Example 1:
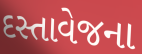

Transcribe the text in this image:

દસ્તાવેજના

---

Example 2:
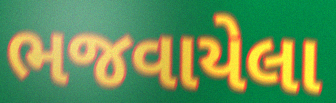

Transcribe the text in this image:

ભજવાયેલા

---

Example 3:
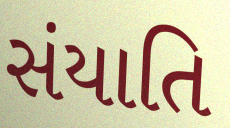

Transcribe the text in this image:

સંયાતિ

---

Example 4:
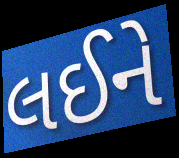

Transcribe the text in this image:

લઈને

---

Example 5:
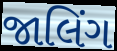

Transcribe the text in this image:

જાલિંગ